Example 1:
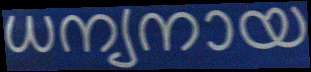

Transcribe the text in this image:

ധന്യനായ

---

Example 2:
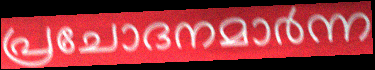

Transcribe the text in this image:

പ്രചോദനമാർന്ന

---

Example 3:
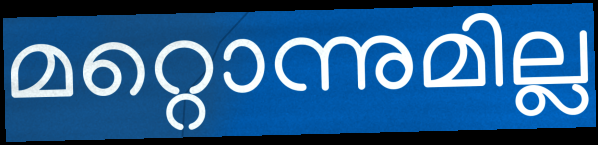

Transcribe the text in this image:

മറ്റൊന്നുമില്ല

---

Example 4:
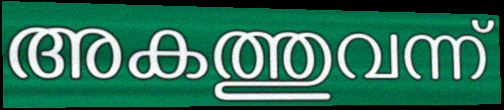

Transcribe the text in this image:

അകത്തുവന്ന്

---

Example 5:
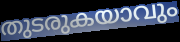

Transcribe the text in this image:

തുടരുകയാവും